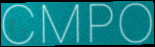
CMPO